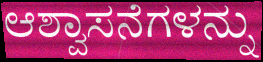
ಆಶ್ವಾಸನೆಗಳನ್ನು